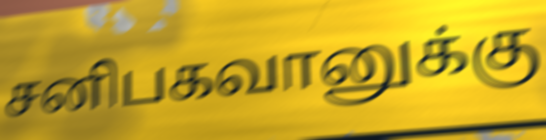
சனிபகவானுக்கு